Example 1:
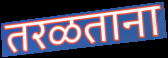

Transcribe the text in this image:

तरळताना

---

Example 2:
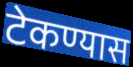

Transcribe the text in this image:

टेकण्यास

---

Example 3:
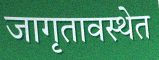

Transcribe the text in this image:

जागृतावस्थेत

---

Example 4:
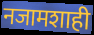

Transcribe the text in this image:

नजामशाही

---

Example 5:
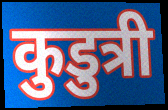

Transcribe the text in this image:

कुडुत्री